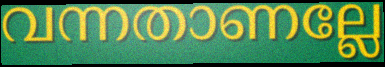
വന്നതാണല്ലേ